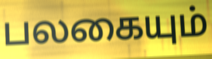
பலகையும்